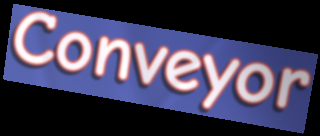
Conveyor